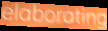
elaborating